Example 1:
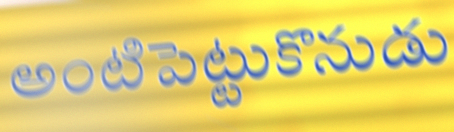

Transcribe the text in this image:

అంటిపెట్టుకొనుడు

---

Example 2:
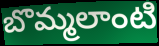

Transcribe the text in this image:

బొమ్మలాంటి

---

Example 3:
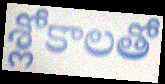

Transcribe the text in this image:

శ్లోకాలతో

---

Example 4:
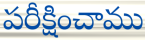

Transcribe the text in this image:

పరీక్షించాము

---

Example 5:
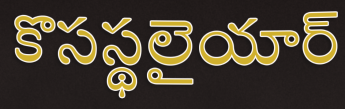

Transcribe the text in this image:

కొసస్థలైయార్